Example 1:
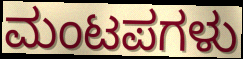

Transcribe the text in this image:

ಮಂಟಪಗಳು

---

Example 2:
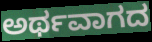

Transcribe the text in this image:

ಅರ್ಥವಾಗದ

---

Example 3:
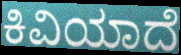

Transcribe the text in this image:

ಕಿವಿಯಾದೆ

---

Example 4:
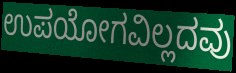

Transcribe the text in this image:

ಉಪಯೋಗವಿಲ್ಲದವು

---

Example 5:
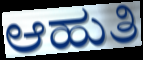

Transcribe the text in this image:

ಆಹುತಿ